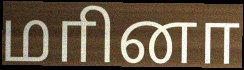
மரினா